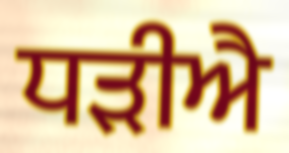
ਧੜੀਐ